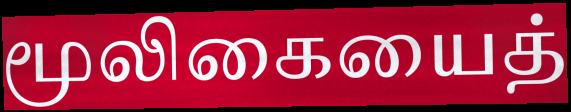
மூலிகையைத்